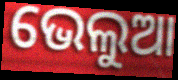
ଭେଲୁଆ